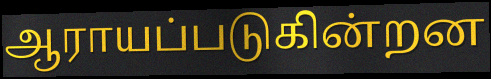
ஆராயப்படுகின்றன